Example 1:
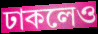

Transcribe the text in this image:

ঢাকলেও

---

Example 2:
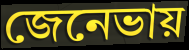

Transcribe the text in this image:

জেনেভায়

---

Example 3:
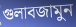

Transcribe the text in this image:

গুলাবজামুন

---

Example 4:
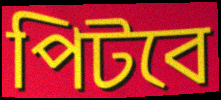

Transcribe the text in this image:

পিটবে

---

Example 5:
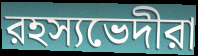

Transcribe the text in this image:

রহস্যভেদীরা